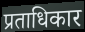
प्रताधिकार